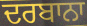
ਦਰਬਾਨਾ